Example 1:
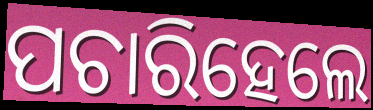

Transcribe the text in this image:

ପଚାରିହେଲେ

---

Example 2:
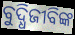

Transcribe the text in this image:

ବୁଦ୍ଧିଜୀବିଙ୍କ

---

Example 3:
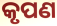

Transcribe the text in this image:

କୃପଣ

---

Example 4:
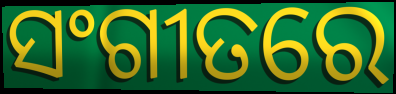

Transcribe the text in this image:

ସଂଗୀତରେ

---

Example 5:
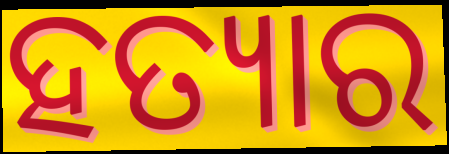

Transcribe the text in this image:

ହତ୍ୟାର